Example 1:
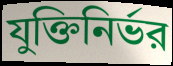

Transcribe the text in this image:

যুক্তিনির্ভর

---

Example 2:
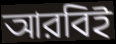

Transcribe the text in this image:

আরবিই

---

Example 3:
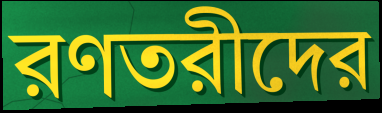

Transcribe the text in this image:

রণতরীদের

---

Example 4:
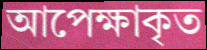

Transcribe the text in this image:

আপেক্ষাকৃত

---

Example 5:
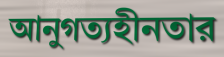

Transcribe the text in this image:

আনুগত্যহীনতার